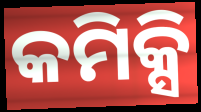
କମିକ୍ସି